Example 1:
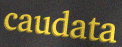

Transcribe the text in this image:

caudata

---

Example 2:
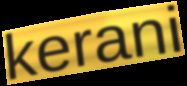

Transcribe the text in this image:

kerani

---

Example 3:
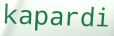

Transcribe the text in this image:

kapardi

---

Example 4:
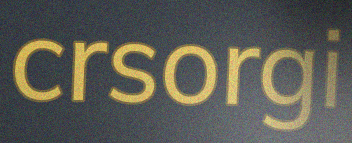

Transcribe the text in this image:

crsorgi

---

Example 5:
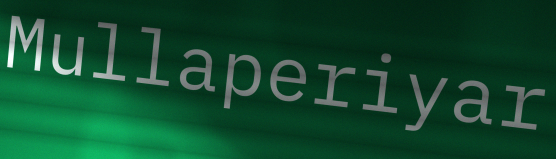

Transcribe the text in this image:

Mullaperiyar